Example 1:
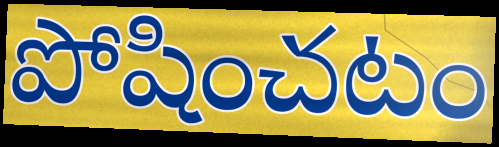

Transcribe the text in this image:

పోషించటం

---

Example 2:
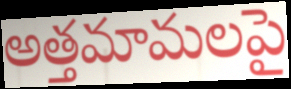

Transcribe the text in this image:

అత్తమామలపై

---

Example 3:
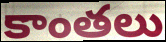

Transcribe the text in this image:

కాంతలు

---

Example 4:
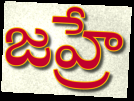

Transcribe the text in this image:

జహ్రే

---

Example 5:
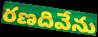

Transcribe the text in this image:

రణదివేను